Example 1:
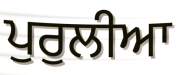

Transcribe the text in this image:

ਪੁਰੁਲੀਆ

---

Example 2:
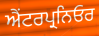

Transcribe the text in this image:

ਐਂਟਰਪ੍ਰਨਿਓਰ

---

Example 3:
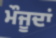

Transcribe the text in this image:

ਮੌਜੂਦਾਂ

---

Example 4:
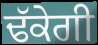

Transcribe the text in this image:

ਢੱਕੇਗੀ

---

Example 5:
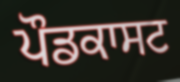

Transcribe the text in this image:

ਪੌਡਕਾਸਟ